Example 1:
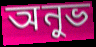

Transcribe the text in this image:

অনুভ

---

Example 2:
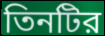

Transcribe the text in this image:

তিনটির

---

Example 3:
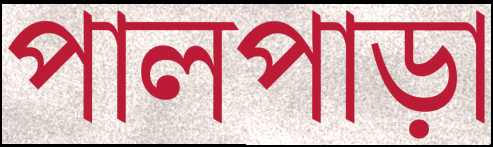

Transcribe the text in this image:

পালপাড়া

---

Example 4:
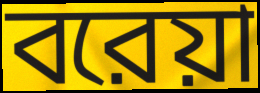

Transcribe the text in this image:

বরেয়া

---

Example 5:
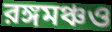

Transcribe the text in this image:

রঙ্গমঞ্চও